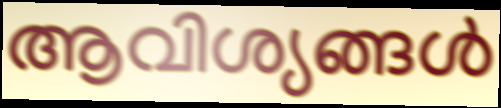
ആവിശ്യങ്ങൾ